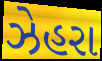
ઝેહરા